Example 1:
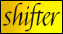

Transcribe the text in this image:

shifter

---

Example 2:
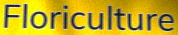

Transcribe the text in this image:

Floriculture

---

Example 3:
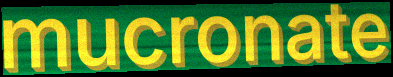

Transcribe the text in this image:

mucronate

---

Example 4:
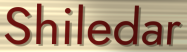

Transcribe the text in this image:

Shiledar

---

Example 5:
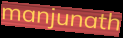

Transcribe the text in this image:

manjunath